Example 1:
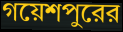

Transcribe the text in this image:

গয়েশপুরের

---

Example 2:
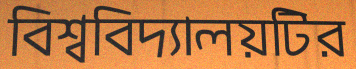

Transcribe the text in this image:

বিশ্ববিদ্যালয়টির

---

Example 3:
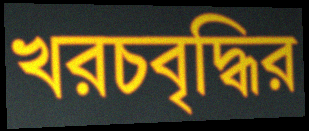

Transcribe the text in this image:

খরচবৃদ্ধির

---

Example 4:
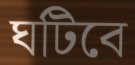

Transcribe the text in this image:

ঘটিবে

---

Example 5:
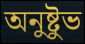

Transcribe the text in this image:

অনুষ্টুভ